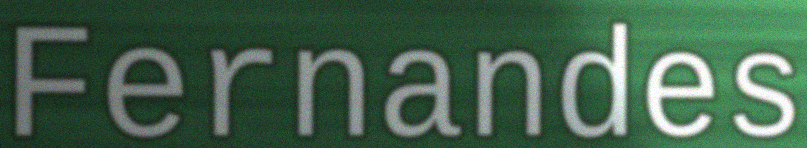
Fernandes